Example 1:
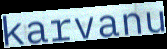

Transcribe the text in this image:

karvanu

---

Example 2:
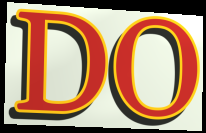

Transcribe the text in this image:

DO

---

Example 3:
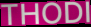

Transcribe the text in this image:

THODI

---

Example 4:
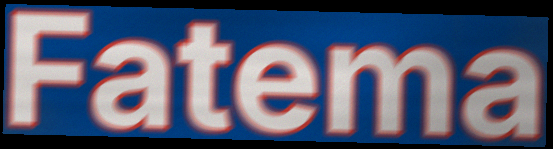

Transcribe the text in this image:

Fatema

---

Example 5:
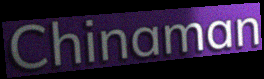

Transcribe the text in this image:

Chinaman